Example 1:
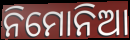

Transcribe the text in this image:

ନିମୋନିଆ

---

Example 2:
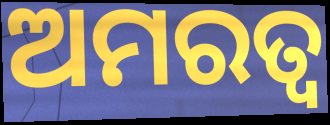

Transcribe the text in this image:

ଅମରତ୍ବ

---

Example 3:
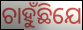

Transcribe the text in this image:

ଚାହୁଁଛିଯେ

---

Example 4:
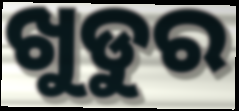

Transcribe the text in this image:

ଖୁଡୁର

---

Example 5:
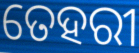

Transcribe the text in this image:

ତେହରୀ